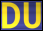
DU